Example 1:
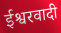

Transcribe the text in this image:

ईश्वरवादी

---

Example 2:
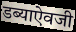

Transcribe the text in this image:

डब्याऐवजी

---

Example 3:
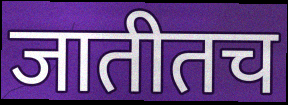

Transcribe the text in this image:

जातीतच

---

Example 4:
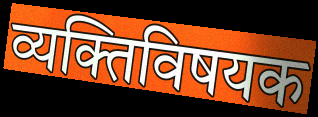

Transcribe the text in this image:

व्यक्तिविषयक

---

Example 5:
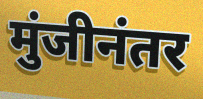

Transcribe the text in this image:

मुंजीनंतर